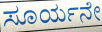
ಸೂರ್ಯನೇ